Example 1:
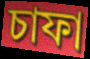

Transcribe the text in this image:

চাফা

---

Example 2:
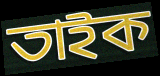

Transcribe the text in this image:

তাইক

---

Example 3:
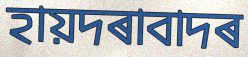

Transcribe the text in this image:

হায়দৰাবাদৰ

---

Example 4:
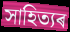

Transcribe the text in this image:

সাহিত্যৰ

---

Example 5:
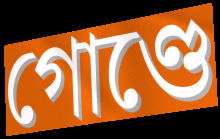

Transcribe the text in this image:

গোণ্ডে